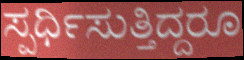
ಸ್ಪರ್ಧಿಸುತ್ತಿದ್ದರೂ